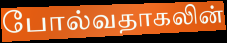
போல்வதாகலின்